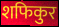
शफिकुर